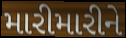
મારીમારીને